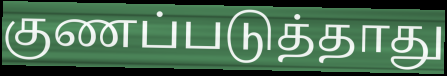
குணப்படுத்தாது